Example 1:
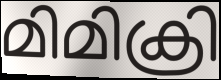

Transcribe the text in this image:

മിമിക്രി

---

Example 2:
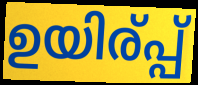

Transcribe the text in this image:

ഉയിര്പ്പ്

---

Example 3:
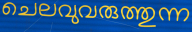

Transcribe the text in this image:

ചെലവുവരുത്തുന്ന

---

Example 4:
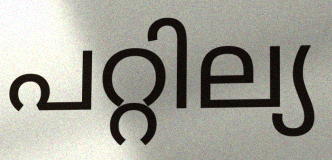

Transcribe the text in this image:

പറ്റില്യ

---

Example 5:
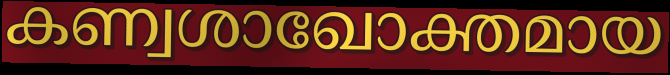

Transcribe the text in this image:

കണ്വശാഖോക്തമായ